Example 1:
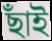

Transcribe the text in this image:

ছাঁই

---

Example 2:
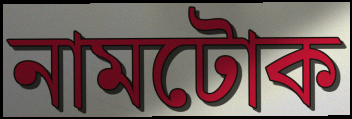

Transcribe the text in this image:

নামটোক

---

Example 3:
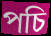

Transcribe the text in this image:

পচি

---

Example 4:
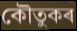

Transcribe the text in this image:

কৌতুকৰ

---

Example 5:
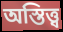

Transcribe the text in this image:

অস্তিত্ত্ব